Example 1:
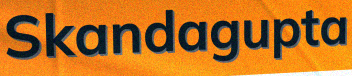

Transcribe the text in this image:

Skandagupta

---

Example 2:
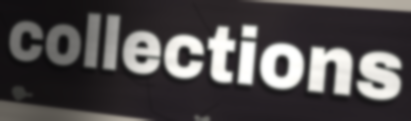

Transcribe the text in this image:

collections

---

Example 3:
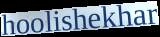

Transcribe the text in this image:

hoolishekhar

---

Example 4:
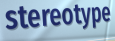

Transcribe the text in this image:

stereotype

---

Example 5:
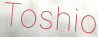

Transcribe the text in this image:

Toshio